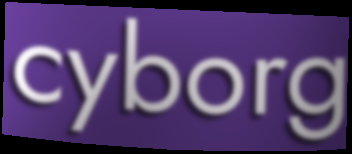
cyborg